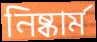
নিষ্কার্ম